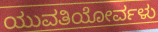
ಯುವತಿಯೋರ್ವಳು